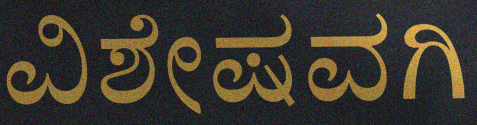
ವಿಶೇಷವಗಿ